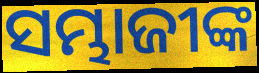
ସମ୍ଭାଜୀଙ୍କ